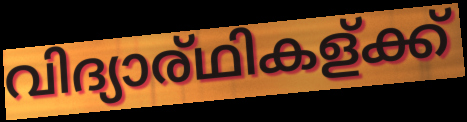
വിദ്യാര്ഥികള്ക്ക്